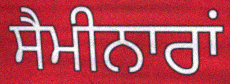
ਸੈਮੀਨਾਰਾਂ